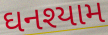
ઘનશ્યામ